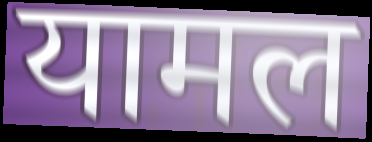
यामल